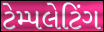
ટેમ્પલેટિંગ